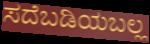
ಸದೆಬಡಿಯಬಲ್ಲ